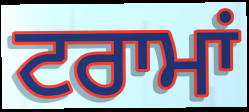
ਟਰਾਮਾਂ